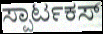
ಸ್ಪಾರ್ಟಕಸ್